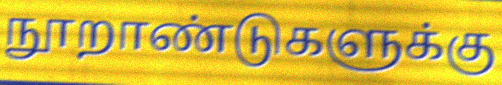
நூறாண்டுகளுக்கு